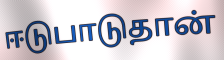
ஈடுபாடுதான்